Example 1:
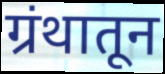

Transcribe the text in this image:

ग्रंथातून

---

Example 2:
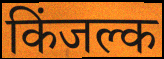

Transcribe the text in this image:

किंजल्क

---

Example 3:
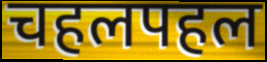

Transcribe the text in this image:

चहलपहल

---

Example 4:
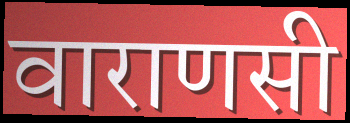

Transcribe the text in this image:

वाराणसी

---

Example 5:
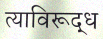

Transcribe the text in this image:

त्याविरूद्ध